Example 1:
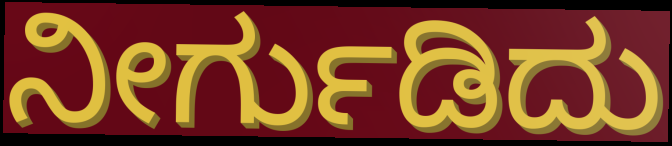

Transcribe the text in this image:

ನೀರ್ಗುಡಿದು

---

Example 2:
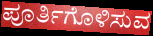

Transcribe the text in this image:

ಪೂರ್ತಿಗೊಳಿಸುವ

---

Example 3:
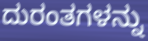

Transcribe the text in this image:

ದುರಂತಗಳನ್ನು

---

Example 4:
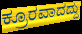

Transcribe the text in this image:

ಕ್ರೂರವಾದದ್ದು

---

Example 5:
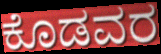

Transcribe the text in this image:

ಕೊಡವರ